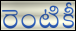
రెంటికీ